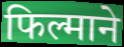
फिल्‍माने